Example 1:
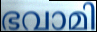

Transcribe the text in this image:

ഭവാമി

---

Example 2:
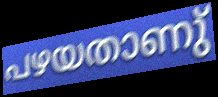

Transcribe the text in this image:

പഴയതാണു്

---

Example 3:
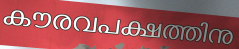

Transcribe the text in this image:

കൗരവപക്ഷത്തിനു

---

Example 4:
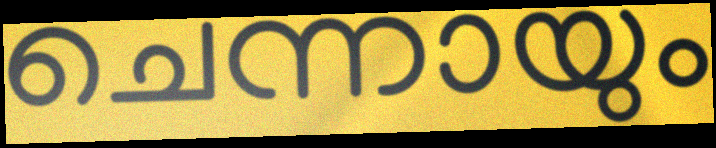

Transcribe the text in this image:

ചെന്നായും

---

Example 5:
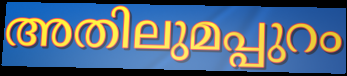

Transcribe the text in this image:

അതിലുമപ്പുറം